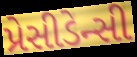
પ્રેસીડેન્સી